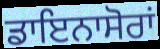
ਡਾਇਨਾਸੋਰਾਂ